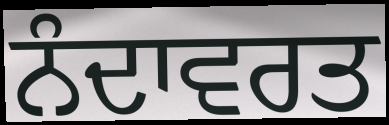
ਨੰਦਾਵਰਤ